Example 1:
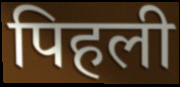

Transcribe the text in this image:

पिहली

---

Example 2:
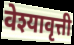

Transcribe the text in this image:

वेश्यावृत्ती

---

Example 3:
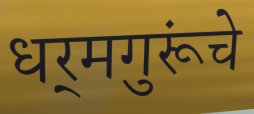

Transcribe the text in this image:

धर्मगुरूंचे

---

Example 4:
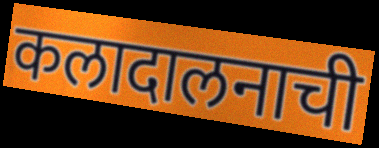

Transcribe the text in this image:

कलादालनाची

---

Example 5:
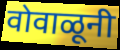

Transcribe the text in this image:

वोवाळूनी